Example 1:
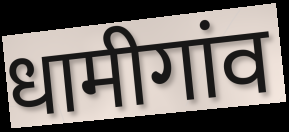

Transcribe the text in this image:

धामीगांव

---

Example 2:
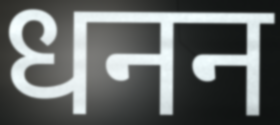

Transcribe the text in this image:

धनन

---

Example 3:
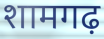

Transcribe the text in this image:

शामगढ़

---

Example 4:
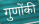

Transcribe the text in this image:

गुणोंकी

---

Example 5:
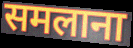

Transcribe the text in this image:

समलाना